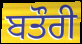
ਬਤੌਰੀ